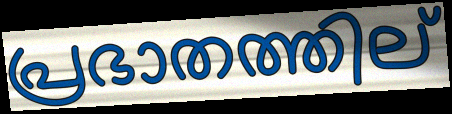
പ്രഭാതത്തില്